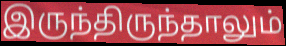
இருந்திருந்தாலும்